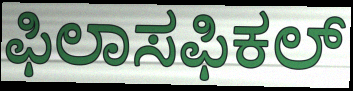
ಫಿಲಾಸಫಿಕಲ್